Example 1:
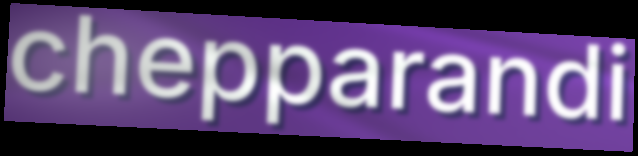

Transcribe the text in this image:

chepparandi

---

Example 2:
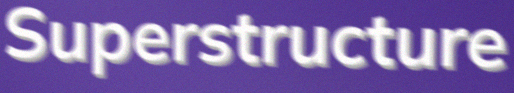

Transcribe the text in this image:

Superstructure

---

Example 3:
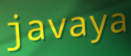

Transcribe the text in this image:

javaya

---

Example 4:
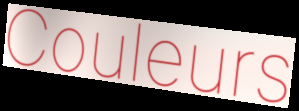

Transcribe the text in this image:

Couleurs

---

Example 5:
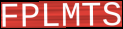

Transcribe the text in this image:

FPLMTS